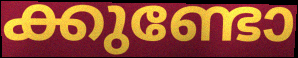
ക്കുണ്ടോ